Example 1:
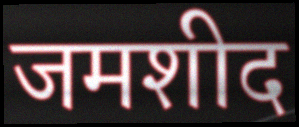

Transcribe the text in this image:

जमशीद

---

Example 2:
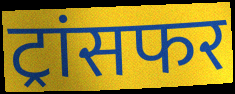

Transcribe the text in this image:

ट्रांसफर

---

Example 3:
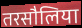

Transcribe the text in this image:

तरसौलिया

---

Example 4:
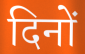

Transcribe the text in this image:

दिनों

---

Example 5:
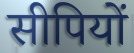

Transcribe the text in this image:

सीपियों